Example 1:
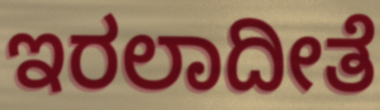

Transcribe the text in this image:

ಇರಲಾದೀತೆ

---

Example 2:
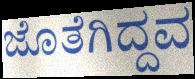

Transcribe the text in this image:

ಜೊತೆಗಿದ್ದವ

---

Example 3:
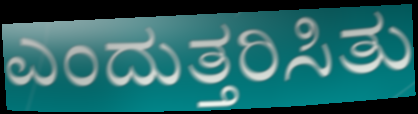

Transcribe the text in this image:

ಎಂದುತ್ತರಿಸಿತು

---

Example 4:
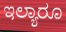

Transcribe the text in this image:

ಇಲ್ಯಾರೂ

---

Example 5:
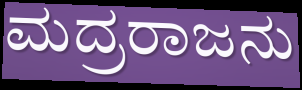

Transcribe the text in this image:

ಮದ್ರರಾಜನು